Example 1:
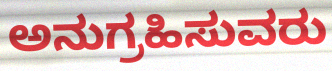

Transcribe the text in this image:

ಅನುಗ್ರಹಿಸುವರು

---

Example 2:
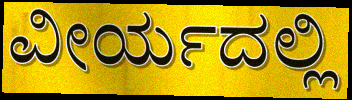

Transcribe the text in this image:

ವೀರ್ಯದಲ್ಲಿ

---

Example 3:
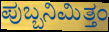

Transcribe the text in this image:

ಪುಬ್ಬನಿಮಿತ್ತಂ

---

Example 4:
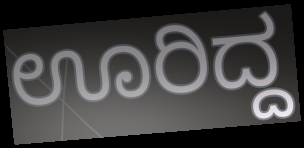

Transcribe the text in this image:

ಊರಿದ್ದ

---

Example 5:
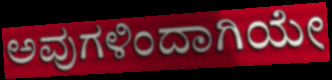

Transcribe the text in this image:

ಅವುಗಳಿಂದಾಗಿಯೇ